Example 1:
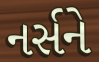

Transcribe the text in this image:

નર્સને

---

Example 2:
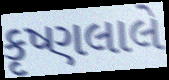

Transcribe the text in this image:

કૃષ્ણલાલે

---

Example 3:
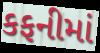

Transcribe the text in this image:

કફનીમાં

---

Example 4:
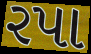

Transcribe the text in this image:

રપા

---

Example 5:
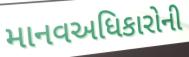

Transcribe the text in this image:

માનવઅધિકારોની